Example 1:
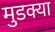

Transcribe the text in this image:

मुडक्या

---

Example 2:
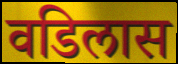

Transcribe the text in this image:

वडिलास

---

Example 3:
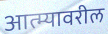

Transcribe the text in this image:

आत्म्यावरील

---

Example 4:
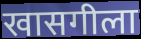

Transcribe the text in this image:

खासगीला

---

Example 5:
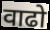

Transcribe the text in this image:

वाढो